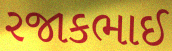
રજાકભાઈ